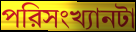
পরিসংখ্যানটা